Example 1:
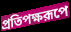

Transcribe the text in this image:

প্রতিপক্ষরূপে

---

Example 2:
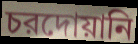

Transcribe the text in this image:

চরদোয়ানি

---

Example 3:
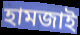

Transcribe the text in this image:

হামজাই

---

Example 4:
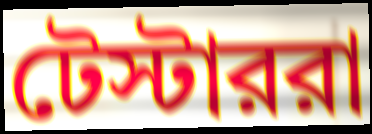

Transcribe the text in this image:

টেস্টাররা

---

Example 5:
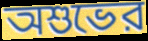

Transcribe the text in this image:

অশুভের